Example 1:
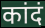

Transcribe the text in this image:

कांदं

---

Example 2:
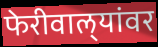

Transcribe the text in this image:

फेरीवाल्यांवर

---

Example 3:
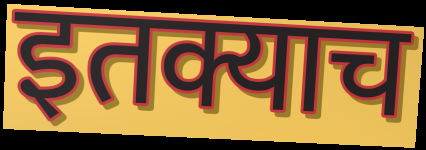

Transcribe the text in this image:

इतक्याच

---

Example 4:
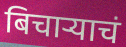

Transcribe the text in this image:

बिचाऱ्याचं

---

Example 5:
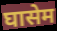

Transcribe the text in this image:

घासेम